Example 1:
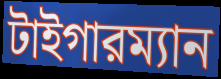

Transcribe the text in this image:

টাইগারম্যান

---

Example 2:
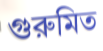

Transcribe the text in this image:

গুরুমিত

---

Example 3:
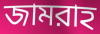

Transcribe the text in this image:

জামরাহ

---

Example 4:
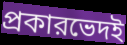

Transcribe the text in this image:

প্রকারভেদই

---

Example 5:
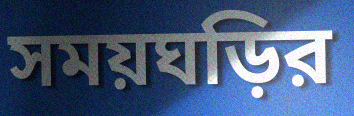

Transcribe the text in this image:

সময়ঘড়ির